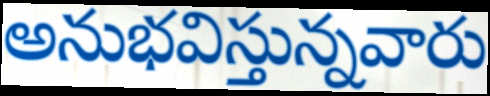
అనుభవిస్తున్నవారు